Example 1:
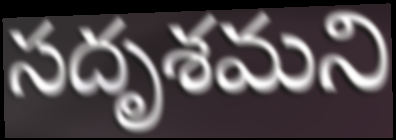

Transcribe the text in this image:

సదృశమని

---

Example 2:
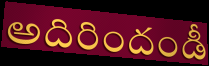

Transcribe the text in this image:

అదిరిందండీ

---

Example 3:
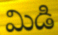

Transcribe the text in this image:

మిడి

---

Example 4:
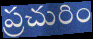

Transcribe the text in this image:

ప్రచురిం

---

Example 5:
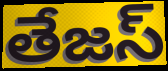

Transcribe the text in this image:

తేజస్